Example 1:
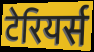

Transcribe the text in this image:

टेरियर्स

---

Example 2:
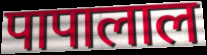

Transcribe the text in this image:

पापालाल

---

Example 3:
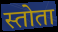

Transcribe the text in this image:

स्तोता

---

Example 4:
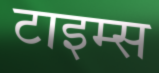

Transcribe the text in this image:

टाइम्‍स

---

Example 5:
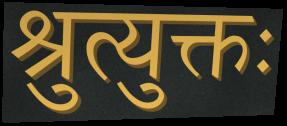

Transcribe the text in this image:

श्रुत्युक्तः